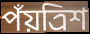
পঁয়ত্রিশ